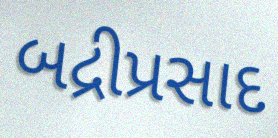
બદ્રીપ્રસાદ